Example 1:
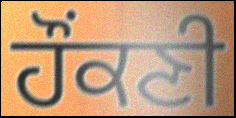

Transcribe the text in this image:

ਹੌਂਕਣੀ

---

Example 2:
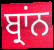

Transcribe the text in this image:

ਬ੍ਰਾਂਨ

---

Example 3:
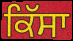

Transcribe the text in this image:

ਕਿੱਸਾ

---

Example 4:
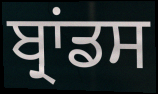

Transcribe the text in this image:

ਬ੍ਰਾਂਡਸ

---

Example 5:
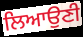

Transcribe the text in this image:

ਲਿਆਉਣੀ